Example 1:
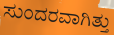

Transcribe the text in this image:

ಸುಂದರವಾಗಿತ್ತು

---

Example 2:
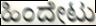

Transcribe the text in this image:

ಹಿಂದೇಟು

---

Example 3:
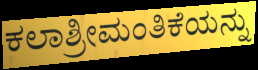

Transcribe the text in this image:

ಕಲಾಶ್ರೀಮಂತಿಕೆಯನ್ನು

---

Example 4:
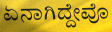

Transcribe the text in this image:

ಏನಾಗಿದ್ದೇವೊ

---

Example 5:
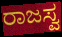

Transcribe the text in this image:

ರಾಜಸ್ವ